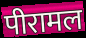
पीरामल